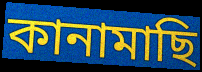
কানামাছি